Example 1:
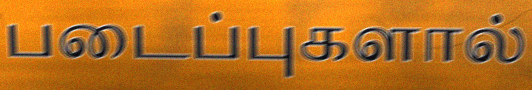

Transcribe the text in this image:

படைப்புகளால்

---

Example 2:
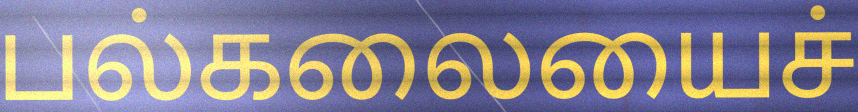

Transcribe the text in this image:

பல்கலையைச்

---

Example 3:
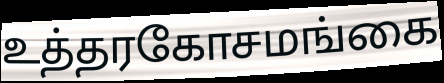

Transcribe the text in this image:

உத்தரகோசமங்கை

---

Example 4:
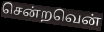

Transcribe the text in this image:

சென்றவென்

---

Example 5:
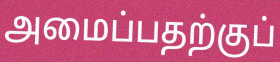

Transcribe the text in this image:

அமைப்பதற்குப்